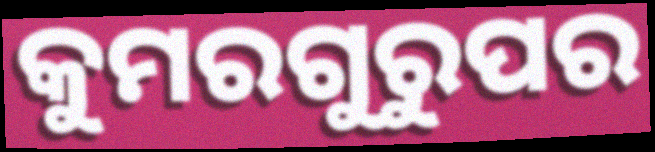
କୁମରଗୁରୁପର